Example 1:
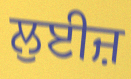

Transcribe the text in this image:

ਲੁਈਜ਼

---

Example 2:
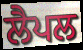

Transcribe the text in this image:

ਲੈਪਲ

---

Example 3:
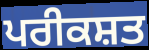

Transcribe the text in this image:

ਪਰੀਕਸ਼ਤ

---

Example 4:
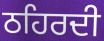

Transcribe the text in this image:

ਠਹਿਰਦੀ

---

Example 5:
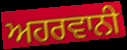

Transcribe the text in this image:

ਅਹਰਵਾਨੀ